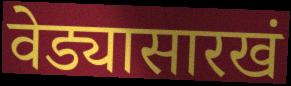
वेड्यासारखं